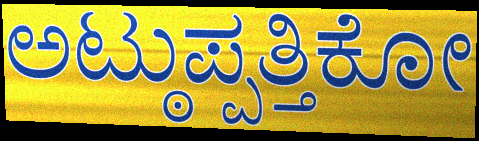
ಅಟ್ಠುಪ್ಪತ್ತಿಕೋ